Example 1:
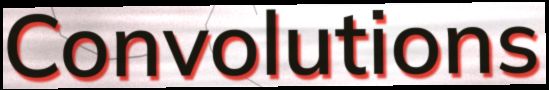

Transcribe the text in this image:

Convolutions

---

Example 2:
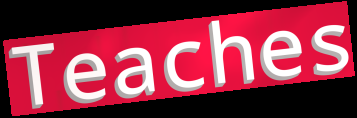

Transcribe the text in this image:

Teaches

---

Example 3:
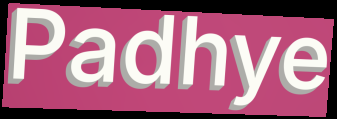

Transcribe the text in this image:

Padhye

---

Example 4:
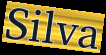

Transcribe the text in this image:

Silva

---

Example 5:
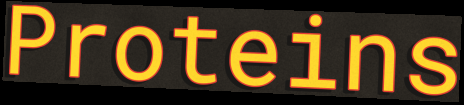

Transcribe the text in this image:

Proteins